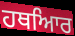
ਹਥਆਿਰ